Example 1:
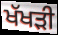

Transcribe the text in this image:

ਖੱਖੜੀ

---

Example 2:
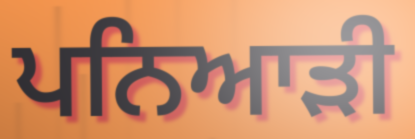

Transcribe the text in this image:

ਪਨਿਆੜੀ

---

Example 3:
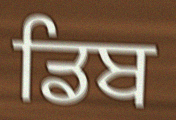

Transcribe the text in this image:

ਡਿਬ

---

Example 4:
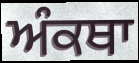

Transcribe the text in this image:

ਅੰਕਥਾ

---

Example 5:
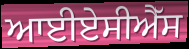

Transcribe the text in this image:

ਆਈਏਸੀਐੱਸ